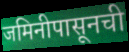
जमिनीपासूनची